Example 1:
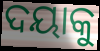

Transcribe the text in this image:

ଦୟାକୁ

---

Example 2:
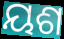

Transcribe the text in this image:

ୟଶ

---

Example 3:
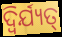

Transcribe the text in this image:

ଦ୍ୱିର୍ଯ୍ୟତ୍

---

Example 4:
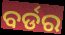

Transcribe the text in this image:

ବର୍ଡର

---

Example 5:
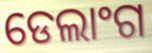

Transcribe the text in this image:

ଡେଲାଂଗ